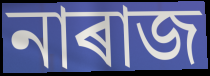
নাৰাজ